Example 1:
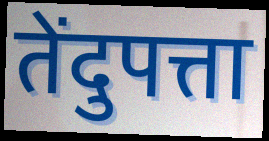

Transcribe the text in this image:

तेंदुपत्ता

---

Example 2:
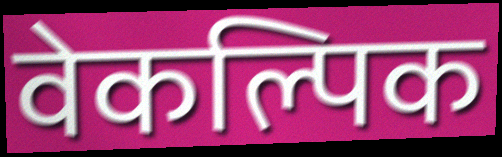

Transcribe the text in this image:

वेकल्पिक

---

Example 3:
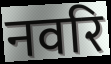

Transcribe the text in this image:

नवरि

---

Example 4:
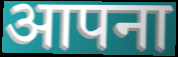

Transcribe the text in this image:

आपना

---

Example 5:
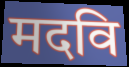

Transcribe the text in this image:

मदवि